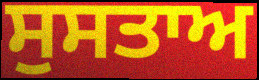
ਸੁਸਤਾਅ